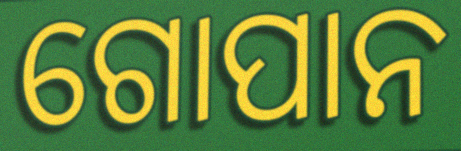
ଗୋପାନ